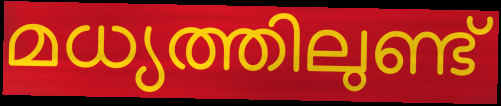
മധ്യത്തിലുണ്ട്